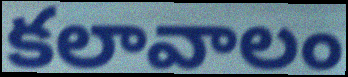
కలావాలం